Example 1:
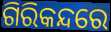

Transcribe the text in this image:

ଗିରିକନ୍ଦରେ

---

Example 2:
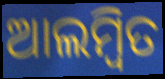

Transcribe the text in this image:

ଆଲମ୍ୱିତ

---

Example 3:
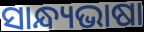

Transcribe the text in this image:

ସାନ୍ଧ୍ୟଭାଷା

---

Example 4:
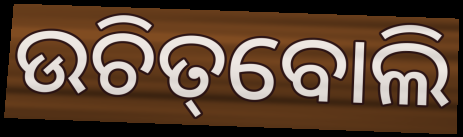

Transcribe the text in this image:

ଉଚିତ୍‌ବୋଲି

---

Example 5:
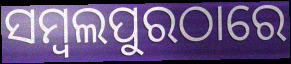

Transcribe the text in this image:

ସମ୍ବଲପୁରଠାରେ